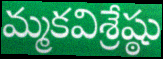
మ్మకవిశ్రేష్ఠు